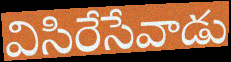
విసిరేసేవాడు